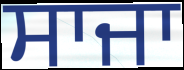
ਸਾਜਾ